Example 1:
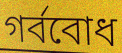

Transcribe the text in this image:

গর্ববোধ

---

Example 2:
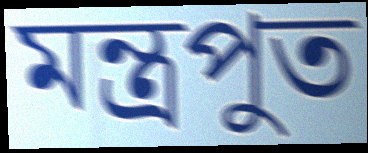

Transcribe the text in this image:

মন্ত্রপুত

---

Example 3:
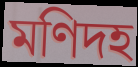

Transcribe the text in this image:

মণিদহ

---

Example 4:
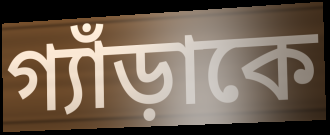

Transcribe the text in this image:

গ্যাঁড়াকে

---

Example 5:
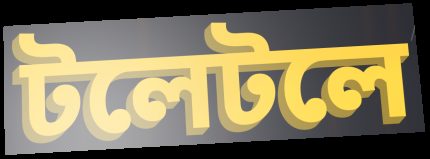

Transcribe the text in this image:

টলেটলে